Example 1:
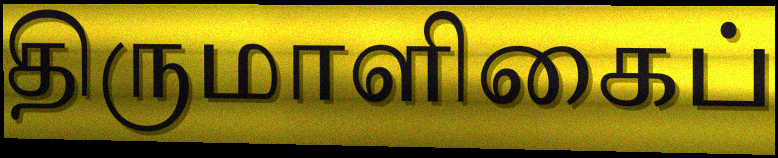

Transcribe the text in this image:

திருமாளிகைப்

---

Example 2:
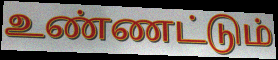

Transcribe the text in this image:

உண்ணட்டும்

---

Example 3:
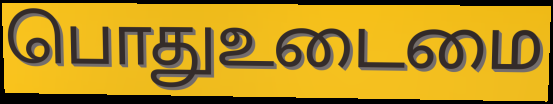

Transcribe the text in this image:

பொதுஉடைமை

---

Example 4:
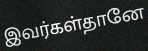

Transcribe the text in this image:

இவர்கள்தானே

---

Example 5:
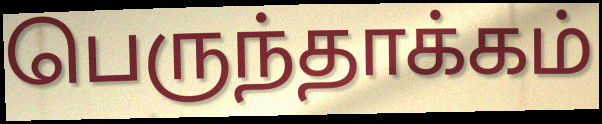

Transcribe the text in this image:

பெருந்தாக்கம்